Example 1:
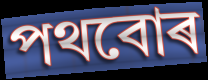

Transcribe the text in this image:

পথবোৰ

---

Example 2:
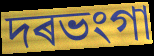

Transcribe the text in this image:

দৰভংগা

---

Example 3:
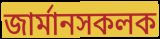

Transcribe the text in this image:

জাৰ্মানসকলক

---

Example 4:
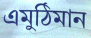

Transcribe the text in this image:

এমুঠিমান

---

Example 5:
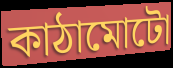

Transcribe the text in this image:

কাঠামোটো